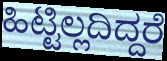
ಹಿಟ್ಟಿಲ್ಲದಿದ್ದರೆ